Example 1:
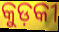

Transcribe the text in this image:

କୁଡ଼କୀ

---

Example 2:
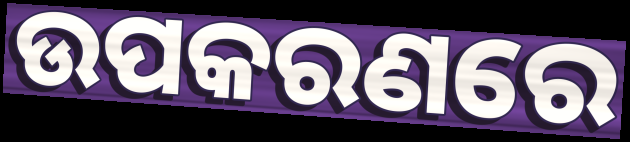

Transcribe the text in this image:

ଉପକରଣରେ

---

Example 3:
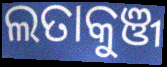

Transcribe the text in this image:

ଲତାକୁଞ୍ଜ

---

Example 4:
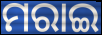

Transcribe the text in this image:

ମରାଇ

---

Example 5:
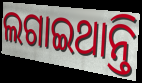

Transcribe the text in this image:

ଲଗାଇଥାନ୍ତି